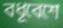
বধূবেশে